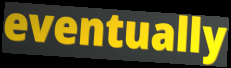
eventually